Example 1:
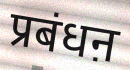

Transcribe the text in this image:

प्रबंधऩ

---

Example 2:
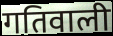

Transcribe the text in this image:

गतिवाली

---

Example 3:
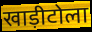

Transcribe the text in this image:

खाड़ीटोला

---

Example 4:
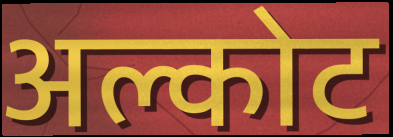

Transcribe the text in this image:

अल्कोट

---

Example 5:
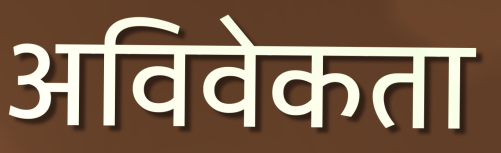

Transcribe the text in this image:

अविवेकता